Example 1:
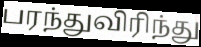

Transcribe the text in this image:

பரந்துவிரிந்து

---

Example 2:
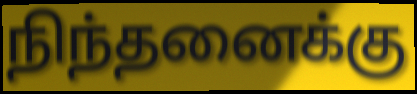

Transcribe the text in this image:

நிந்தனைக்கு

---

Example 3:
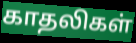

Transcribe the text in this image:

காதலிகள்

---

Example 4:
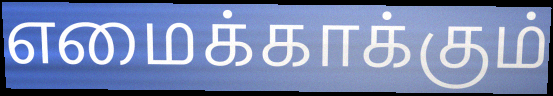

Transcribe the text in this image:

எமைக்காக்கும்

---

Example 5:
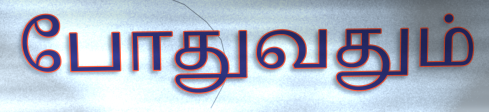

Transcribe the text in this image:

போதுவதும்